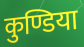
कुण्डिया